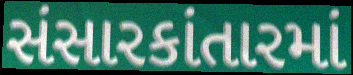
સંસારકાંતારમાં